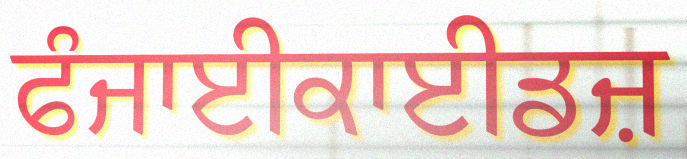
ਫੰਜਾਈਕਾਈਡਜ਼